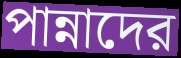
পান্নাদের